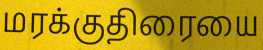
மரக்குதிரையை